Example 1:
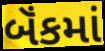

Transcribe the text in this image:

બૅંકમાં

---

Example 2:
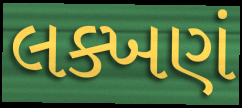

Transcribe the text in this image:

લક્ખણં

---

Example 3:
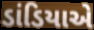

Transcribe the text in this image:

ડાંડિયાએ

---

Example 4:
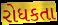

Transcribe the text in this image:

રોધકતા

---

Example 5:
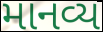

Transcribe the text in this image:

માનવ્ય